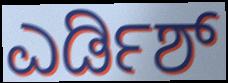
ಎರ್ಡಿಶ್